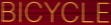
BICYCLE